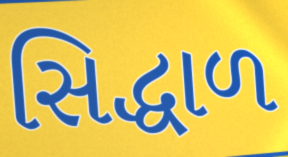
સિદ્ધાળ